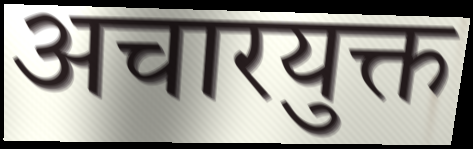
अचारयुक्त